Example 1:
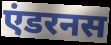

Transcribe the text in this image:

एंडरनस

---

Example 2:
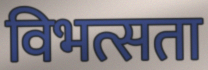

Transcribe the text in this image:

विभत्सता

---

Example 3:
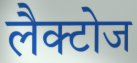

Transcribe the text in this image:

लैक्‍टोज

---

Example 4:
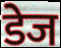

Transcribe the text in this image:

डेज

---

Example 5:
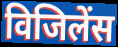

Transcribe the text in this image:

विजिलेंस